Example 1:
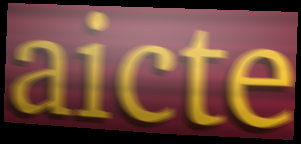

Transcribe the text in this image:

aicte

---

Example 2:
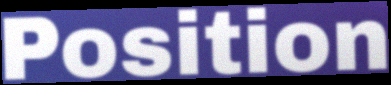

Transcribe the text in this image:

Position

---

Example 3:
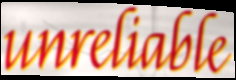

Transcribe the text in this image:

unreliable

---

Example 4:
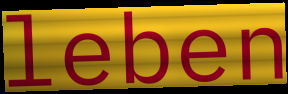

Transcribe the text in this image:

leben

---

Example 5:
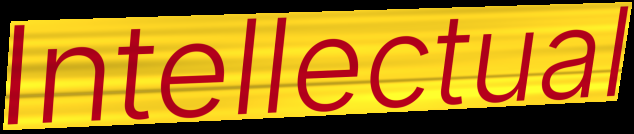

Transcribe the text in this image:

Intellectual